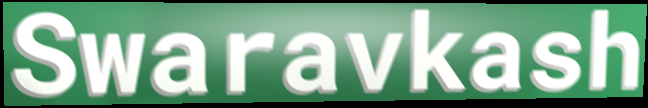
Swaravkash